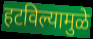
हटविल्यामुळे